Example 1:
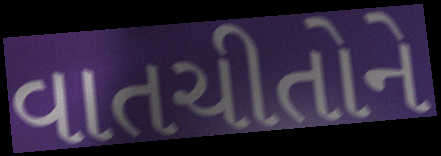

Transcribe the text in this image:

વાતચીતોને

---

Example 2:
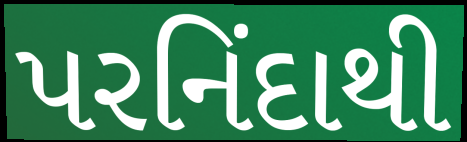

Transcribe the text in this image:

પરનિંદાથી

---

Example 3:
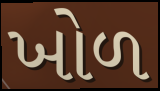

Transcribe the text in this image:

ખોળ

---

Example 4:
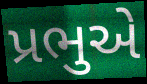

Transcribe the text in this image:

પ્રભુએ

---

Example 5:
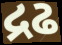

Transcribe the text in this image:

દ્રઢ